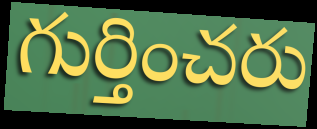
గుర్తించరు